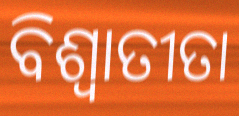
ବିଶ୍ଵାତୀତା